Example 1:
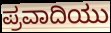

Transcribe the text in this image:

ಪ್ರವಾದಿಯು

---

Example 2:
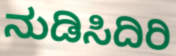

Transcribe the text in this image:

ನುಡಿಸಿದಿರಿ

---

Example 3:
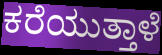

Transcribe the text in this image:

ಕರೆಯುತ್ತಾಳೆ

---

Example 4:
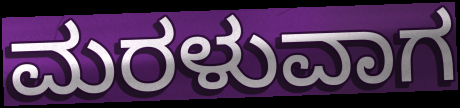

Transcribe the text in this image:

ಮರಳುವಾಗ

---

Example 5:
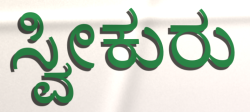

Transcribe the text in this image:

ಸ್ವೀಕುರು